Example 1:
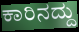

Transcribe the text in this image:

ಕಾರಿನದ್ದು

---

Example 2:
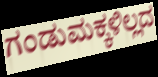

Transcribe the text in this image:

ಗಂಡುಮಕ್ಕಳಿಲ್ಲದ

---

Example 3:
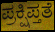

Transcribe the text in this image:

ಪ್ರಕ್ಷಿಪ್ತತೆ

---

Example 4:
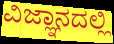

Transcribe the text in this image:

ವಿಜ್ಞಾನದಲ್ಲಿ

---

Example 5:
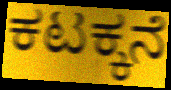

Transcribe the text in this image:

ಕಟಕ್ಕನೆ